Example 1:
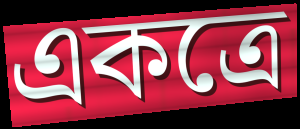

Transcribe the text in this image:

একত্রে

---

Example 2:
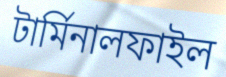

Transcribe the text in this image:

টার্মিনালফাইল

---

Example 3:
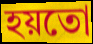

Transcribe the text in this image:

হয়তো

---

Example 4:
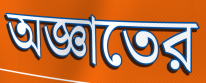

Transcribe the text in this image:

অজ্ঞাতের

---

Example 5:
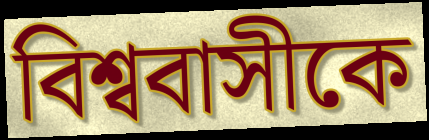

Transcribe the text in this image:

বিশ্ববাসীকে